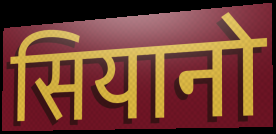
सियानो